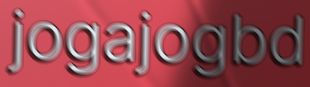
jogajogbd